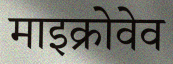
माइक्रोवेव